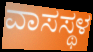
ವಾಸಸ್ಥಳ